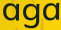
aga